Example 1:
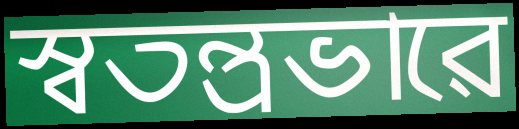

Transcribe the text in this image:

স্বতন্ত্ৰভাৱে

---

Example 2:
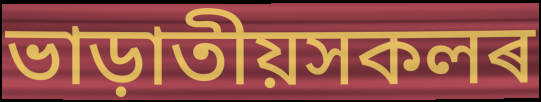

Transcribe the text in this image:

ভাড়াতীয়সকলৰ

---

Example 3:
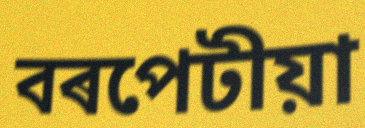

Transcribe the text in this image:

বৰপেটীয়া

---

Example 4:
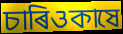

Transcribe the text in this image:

চাৰিওকাষে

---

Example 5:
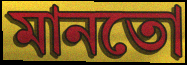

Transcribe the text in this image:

মানতো